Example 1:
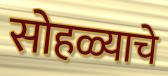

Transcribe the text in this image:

सोहळ्याचे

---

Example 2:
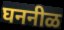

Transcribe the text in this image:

घननीळ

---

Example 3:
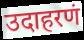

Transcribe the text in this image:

उदाहरणं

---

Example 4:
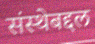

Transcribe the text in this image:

संस्थेबद्दल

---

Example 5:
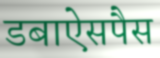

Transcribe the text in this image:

डबाऐसपैस